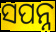
ସପନ୍ନ